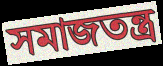
সমাজতন্ত্ৰ